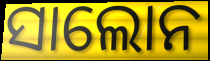
ସାଲୋନ